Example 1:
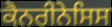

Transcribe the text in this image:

ਕੈਨਰੀਨੇਸਿਸ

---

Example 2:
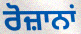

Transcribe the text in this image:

ਰੋਜ਼ਾਨਾਂ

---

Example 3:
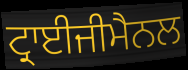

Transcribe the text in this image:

ਟ੍ਰਾਈਜੀਮੈਨਲ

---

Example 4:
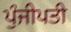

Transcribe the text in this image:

ਪੁੰਜੀਪਤੀ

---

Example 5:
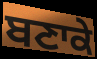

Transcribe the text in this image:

ਬਣਾਕੇ